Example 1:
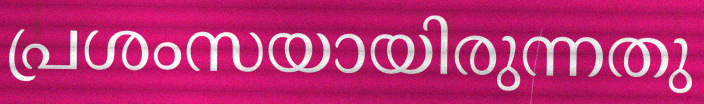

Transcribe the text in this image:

പ്രശംസയായിരുന്നതു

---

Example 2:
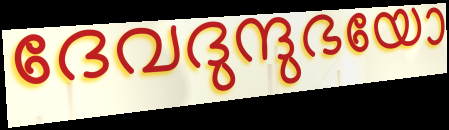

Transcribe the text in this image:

ദേവദുന്ദുഭയോ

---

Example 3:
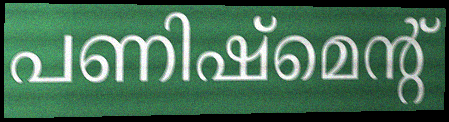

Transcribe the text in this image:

പണിഷ്മെന്റ്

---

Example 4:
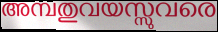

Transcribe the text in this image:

അമ്പതുവയസ്സുവരെ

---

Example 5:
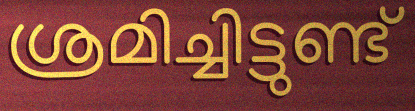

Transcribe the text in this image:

ശ്രമിച്ചിട്ടുണ്ട്